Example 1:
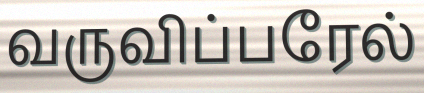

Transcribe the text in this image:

வருவிப்பரேல்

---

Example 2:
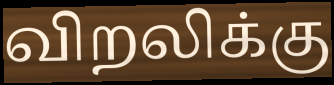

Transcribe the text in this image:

விறலிக்கு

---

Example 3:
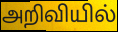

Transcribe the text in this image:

அறிவியில்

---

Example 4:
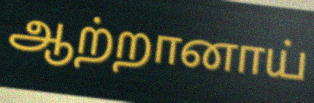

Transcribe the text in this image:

ஆற்றானாய்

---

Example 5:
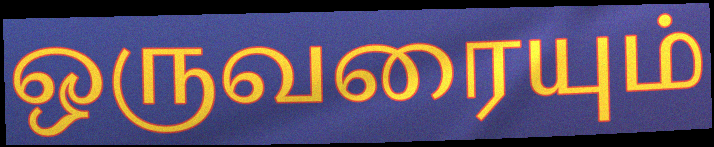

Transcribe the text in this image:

ஒருவரையும்